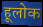
हूलोक